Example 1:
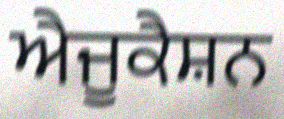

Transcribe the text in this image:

ਐਜੂਕੈਸ਼ਨ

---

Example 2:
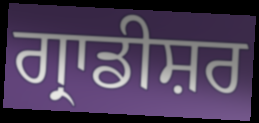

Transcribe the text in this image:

ਗ੍ਰਾਡੀਸ਼ਰ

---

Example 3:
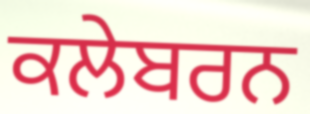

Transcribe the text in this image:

ਕਲੇਬਰਨ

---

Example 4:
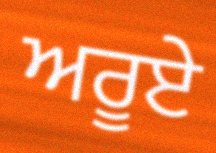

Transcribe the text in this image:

ਅਰੂਏ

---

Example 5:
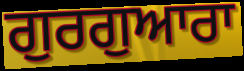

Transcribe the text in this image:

ਗੁਰਗੁਆਰਾ